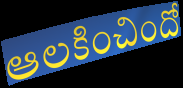
ఆలకించిందో